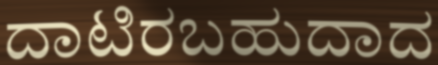
ದಾಟಿರಬಹುದಾದ